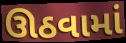
ઊઠવામાં